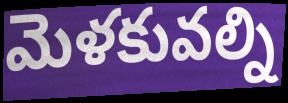
మెళకువల్ని